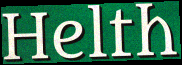
Helth